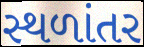
સ્થળાંતર